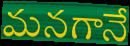
మనగానే